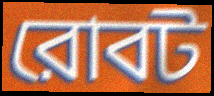
রোবট